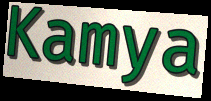
Kamya